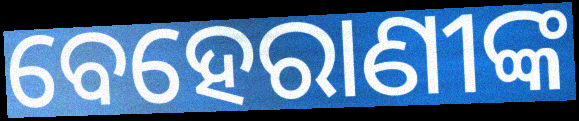
ବେହେରାଣୀଙ୍କ